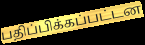
பதிப்பிக்கப்பட்டன